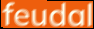
feudal